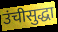
उंचीसुद्धा